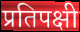
प्रतिपक्षी